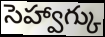
సెహ్వాగ్కు